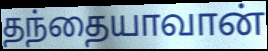
தந்தையாவான்